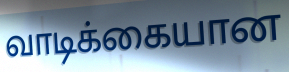
வாடிக்கையான